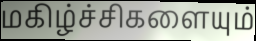
மகிழ்ச்சிகளையும்